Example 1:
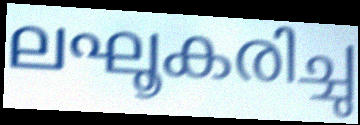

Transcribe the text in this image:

ലഘൂകരിച്ചു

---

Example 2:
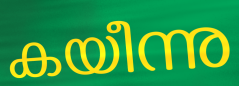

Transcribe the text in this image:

കയീന്നു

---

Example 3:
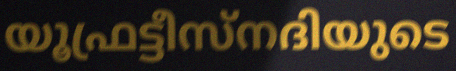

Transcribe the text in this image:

യൂഫ്രട്ടീസ്നദിയുടെ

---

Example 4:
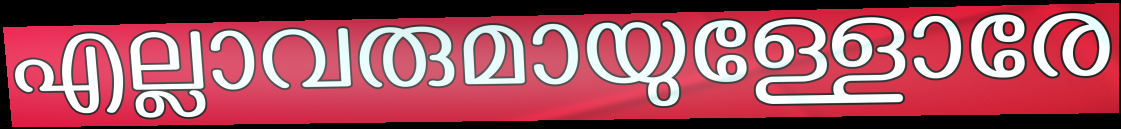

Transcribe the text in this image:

എല്ലാവരുമായുള്ളോരേ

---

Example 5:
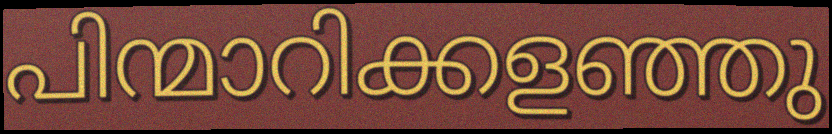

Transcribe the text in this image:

പിന്മാറിക്കളഞ്ഞു